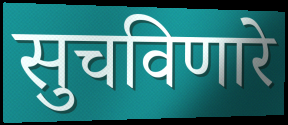
सुचविणारे